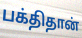
பக்திதான்